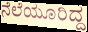
ನೆಲೆಯೂರಿದ್ದ